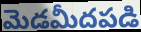
మెడమీదపడి